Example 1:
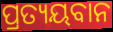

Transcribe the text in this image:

ପ୍ରତ୍ୟୟବାନ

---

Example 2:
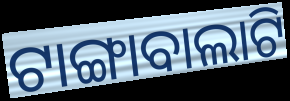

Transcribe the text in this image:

ଟାଙ୍ଗାବାଲାଟି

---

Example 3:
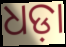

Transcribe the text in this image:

ଧଡ଼ା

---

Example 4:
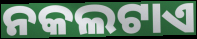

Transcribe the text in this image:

ନକଲଟାଏ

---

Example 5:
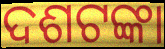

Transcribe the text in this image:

ଦଶଟଙ୍କା